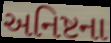
અનિષ્ટના